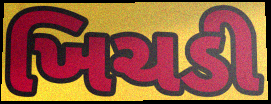
ખિચડી